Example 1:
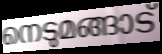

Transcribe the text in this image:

നെടുമങ്ങാട്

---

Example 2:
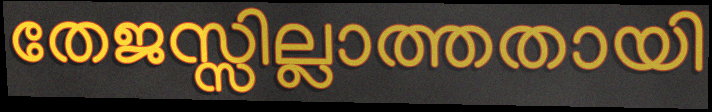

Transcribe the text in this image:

തേജസ്സില്ലാത്തതായി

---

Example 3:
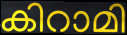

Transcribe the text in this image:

കിറാമി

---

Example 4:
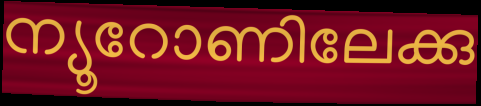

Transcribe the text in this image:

ന്യൂറോണിലേക്കു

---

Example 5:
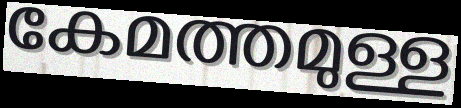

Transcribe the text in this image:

കേമത്തമുള്ള